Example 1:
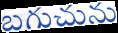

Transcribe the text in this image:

బగుచును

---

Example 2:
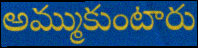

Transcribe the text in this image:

అమ్ముకుంటారు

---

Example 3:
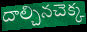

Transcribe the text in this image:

దాల్చినచెక్క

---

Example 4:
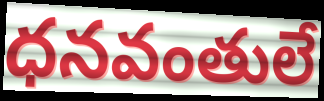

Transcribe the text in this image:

ధనవంతులే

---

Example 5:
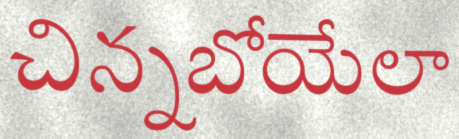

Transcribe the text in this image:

చిన్నబోయేలా